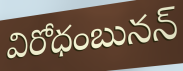
విరోధంబునన్